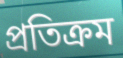
প্ৰতিক্ৰম